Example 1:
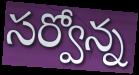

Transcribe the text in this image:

సర్వోన్న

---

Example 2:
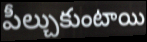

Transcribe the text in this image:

పీల్చుకుంటాయి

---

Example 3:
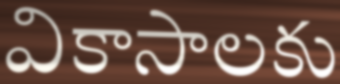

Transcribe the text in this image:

వికాసాలకు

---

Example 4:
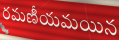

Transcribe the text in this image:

రమణీయమయిన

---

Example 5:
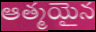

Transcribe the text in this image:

ఆత్మయైన